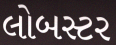
લોબસ્ટર